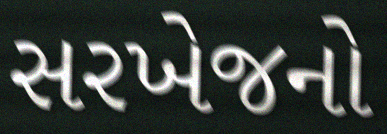
સરખેજનો